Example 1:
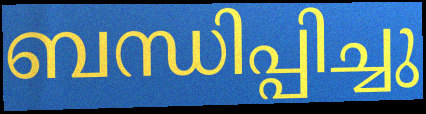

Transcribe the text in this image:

ബന്ധിപ്പിച്ചു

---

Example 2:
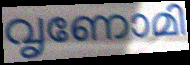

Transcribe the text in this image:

വൃണോമി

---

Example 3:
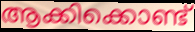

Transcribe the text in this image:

ആക്കിക്കൊണ്ട്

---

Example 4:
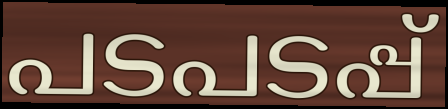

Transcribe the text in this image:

പടപടപ്പ്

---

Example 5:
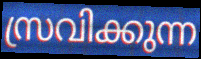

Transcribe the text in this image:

സ്രവിക്കുന്ന